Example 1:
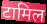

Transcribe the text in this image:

टामिल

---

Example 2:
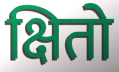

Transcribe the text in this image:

क्षितो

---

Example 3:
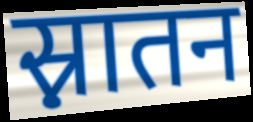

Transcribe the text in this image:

स्नातन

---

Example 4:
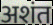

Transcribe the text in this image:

अशंत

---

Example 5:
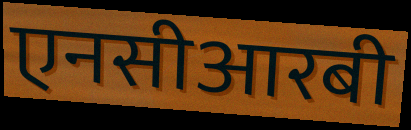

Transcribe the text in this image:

एनसीआरबी